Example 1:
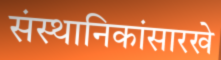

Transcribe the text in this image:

संस्थानिकांसारखे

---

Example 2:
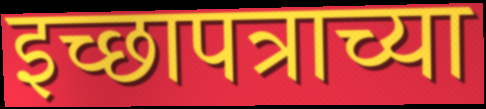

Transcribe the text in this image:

इच्छापत्राच्या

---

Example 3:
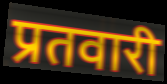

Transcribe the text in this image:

प्रतवारी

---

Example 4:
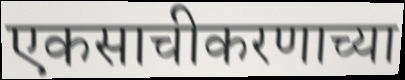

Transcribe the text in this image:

एकसाचीकरणाच्या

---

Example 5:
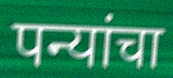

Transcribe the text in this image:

पन्यांचा